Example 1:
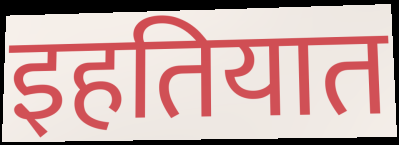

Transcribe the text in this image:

इहतियात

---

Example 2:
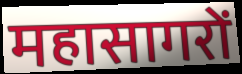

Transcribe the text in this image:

महासागरों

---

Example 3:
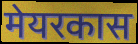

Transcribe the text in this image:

मेयरकास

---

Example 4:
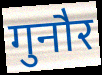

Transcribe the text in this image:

गुनौर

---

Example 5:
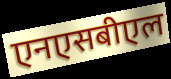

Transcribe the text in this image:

एनएसबीएल